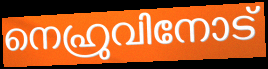
നെഹ്രുവിനോട്